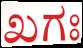
ಖಗಃ